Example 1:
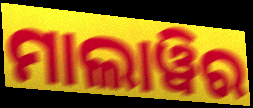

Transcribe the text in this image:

ମାଲାୱିର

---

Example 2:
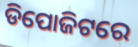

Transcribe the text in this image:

ଡିପୋଜିଟରେ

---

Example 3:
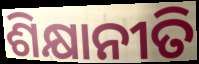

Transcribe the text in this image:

ଶିକ୍ଷାନୀତି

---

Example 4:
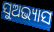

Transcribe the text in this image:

ସୁଅଭ୍ୟାସ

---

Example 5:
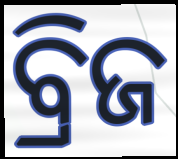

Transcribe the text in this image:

ବ୍ରିଜ